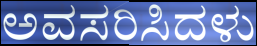
ಅವಸರಿಸಿದಳು